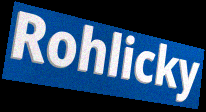
Rohlicky